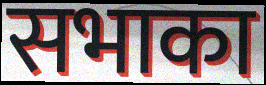
सभाका